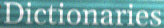
Dictionaries